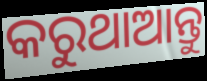
କରୁଥାଆନ୍ତୁ